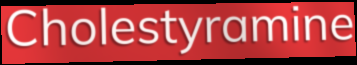
Cholestyramine